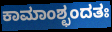
ಕಾಮಾಂಶ್ಛಂದತಃ